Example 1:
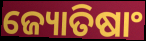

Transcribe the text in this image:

ଜ୍ୟୋତିଷାଂ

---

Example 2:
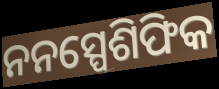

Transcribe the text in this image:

ନନସ୍ପେଶିଫିକ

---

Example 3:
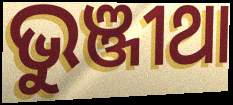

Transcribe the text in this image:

ଭୁଞ୍ଜୀଥା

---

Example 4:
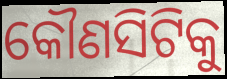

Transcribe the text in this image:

କୌଣସିଟିକୁ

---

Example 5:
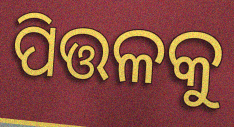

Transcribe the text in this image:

ପିତ୍ତଳକୁ